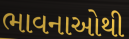
ભાવનાઓથી